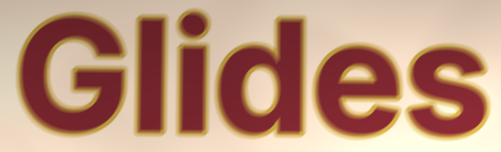
Glides